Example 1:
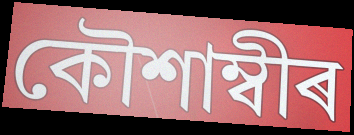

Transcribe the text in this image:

কৌশাম্বীৰ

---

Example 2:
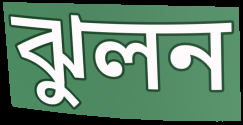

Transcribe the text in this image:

ঝুলন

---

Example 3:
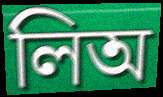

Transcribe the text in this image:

লিঅ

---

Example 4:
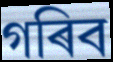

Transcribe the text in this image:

গৰিব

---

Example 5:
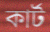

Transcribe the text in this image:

কাৰ্ট